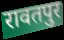
रावतपुर